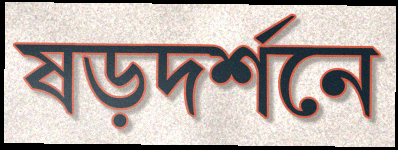
ষড়দর্শনে